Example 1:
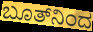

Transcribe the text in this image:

ಬೂತ್‌ನಿಂದ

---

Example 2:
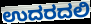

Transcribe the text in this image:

ಉದರದಲಿ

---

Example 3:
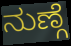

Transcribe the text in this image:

ನುಣ್ಗೆ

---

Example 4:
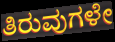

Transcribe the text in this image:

ತಿರುವುಗಳೇ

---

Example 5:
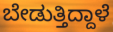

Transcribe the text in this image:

ಬೇಡುತ್ತಿದ್ದಾಳೆ